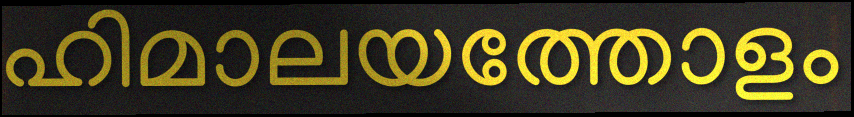
ഹിമാലയത്തോളം